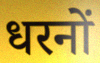
धरनों